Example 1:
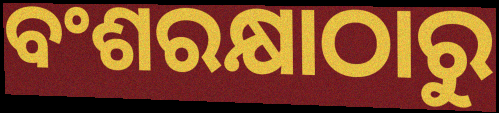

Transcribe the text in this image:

ବଂଶରକ୍ଷାଠାରୁ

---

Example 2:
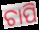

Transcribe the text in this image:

ଚାପି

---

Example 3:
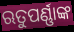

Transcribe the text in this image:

ଋତୁପର୍ଣ୍ଣାଙ୍କ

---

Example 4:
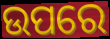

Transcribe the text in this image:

ଉପରେ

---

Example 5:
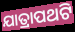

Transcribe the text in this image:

ଯାତ୍ରାପଥଟି